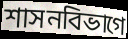
শাসনবিভাগে